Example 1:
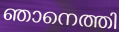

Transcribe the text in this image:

ഞാനെത്തി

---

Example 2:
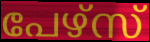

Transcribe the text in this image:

പേഴ്സ്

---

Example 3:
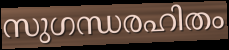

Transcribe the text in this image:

സുഗന്ധരഹിതം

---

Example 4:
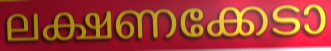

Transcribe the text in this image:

ലക്ഷണക്കേടാ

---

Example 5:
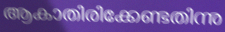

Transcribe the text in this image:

ആകാതിരിക്കേണ്ടതിന്നു